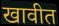
खावीत